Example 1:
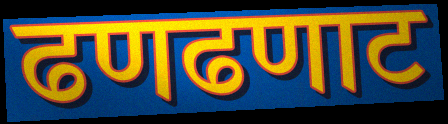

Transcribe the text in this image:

ढणढणाट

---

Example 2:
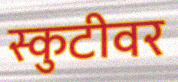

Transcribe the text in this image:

स्कुटीवर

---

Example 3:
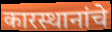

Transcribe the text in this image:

कारस्थानांचे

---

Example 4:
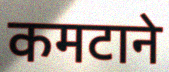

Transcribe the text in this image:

कमटाने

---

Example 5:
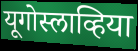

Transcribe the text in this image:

यूगोस्लाव्हिया